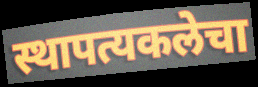
स्थापत्यकलेचा